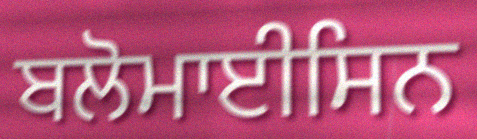
ਬਲੋਮਾਈਸਿਨ